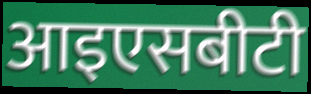
आइएसबीटी